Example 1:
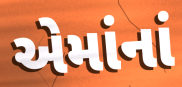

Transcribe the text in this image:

એમાંનાં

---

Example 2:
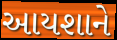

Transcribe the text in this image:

આયશાને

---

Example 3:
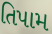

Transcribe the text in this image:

તિપામ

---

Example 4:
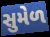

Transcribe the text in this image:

સુમેળ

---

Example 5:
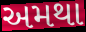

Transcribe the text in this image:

અમથા